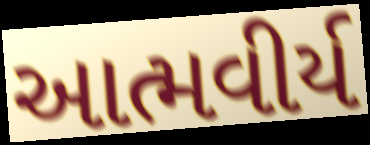
આત્મવીર્ય